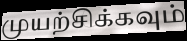
முயற்சிக்கவும்